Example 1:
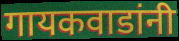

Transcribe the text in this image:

गायकवाडांनी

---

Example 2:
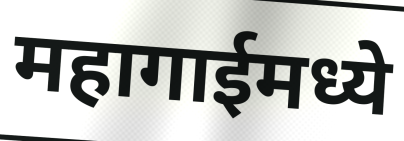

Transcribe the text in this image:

महागाईमध्ये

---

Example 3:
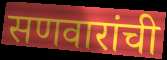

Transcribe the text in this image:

सणवारांची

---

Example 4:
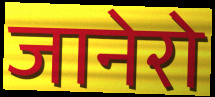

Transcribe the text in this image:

जानेरो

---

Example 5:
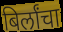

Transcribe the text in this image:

बिर्लांचा